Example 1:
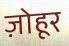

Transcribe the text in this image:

ज़ोहूर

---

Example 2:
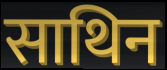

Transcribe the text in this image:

साथिन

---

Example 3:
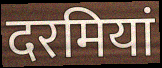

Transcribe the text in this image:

दरमियां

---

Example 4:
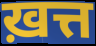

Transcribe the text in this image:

ख़त्त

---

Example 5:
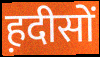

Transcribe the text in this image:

ह़दीसों